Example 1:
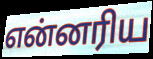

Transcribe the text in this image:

என்னரிய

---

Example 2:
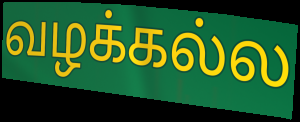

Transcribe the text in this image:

வழக்கல்ல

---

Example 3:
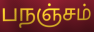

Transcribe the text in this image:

பநஞ்சம்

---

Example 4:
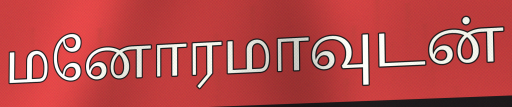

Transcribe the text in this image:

மனோரமாவுடன்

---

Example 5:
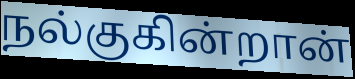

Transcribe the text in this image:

நல்குகின்றான்